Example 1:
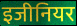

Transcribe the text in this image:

इजीनियर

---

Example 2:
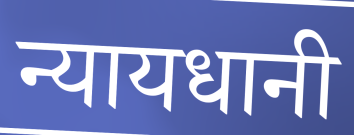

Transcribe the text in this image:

न्यायधानी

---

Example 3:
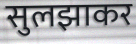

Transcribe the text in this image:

सुलझाकर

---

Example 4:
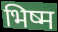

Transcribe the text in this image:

भिष्म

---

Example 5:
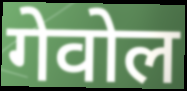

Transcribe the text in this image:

गेवोल